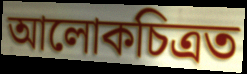
আলোকচিত্ৰত